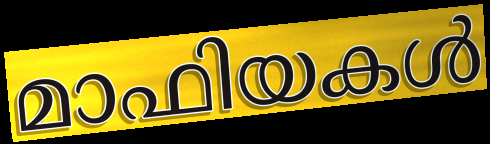
മാഫിയകൾ